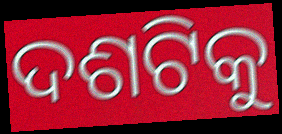
ଦଶଟିକୁ